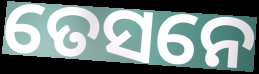
ତେସନେ